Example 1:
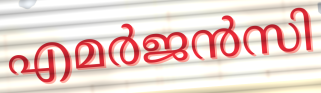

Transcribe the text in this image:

എമർജൻസി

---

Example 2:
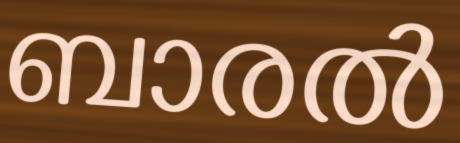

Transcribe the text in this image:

ബാരൽ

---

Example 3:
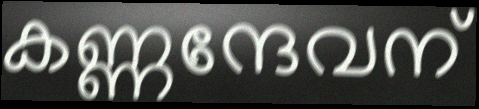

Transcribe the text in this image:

കണ്ണന്ദേവന്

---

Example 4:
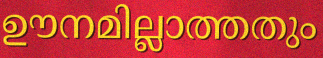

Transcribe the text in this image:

ഊനമില്ലാത്തതും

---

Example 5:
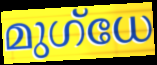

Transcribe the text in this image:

മുഗ്ധേ